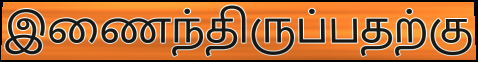
இணைந்திருப்பதற்கு